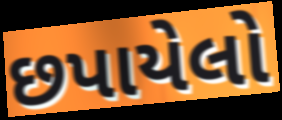
છપાયેલો